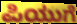
ಪಿಯುಗೆ